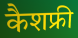
कैशफ्री